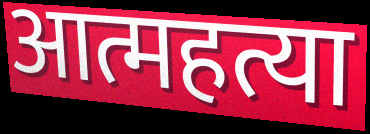
आत्महत्या